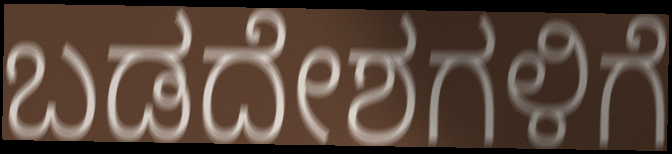
ಬಡದೇಶಗಳಿಗೆ